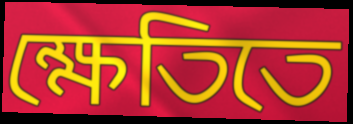
ক্ষেতিতে